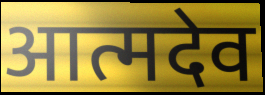
आत्मदेव